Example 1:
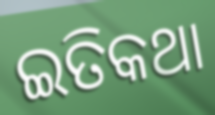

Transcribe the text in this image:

ଇତିକଥା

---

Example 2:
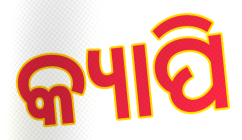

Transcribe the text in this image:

କ୍ୟାପି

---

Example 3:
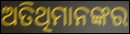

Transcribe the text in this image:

ଅତିଥିମାନଙ୍କର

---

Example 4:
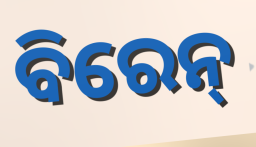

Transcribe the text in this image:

ବିରେନ୍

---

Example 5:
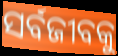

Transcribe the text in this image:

ସର୍ବଜୀବକୁ